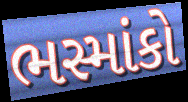
ભસ્માંકો